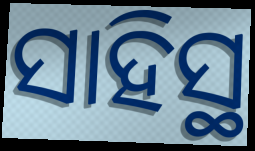
ସାହିସ୍ଥ